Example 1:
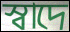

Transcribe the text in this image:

স্বাদে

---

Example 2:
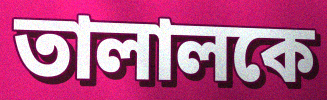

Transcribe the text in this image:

তালালকে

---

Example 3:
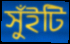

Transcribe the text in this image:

সুঁইটি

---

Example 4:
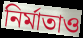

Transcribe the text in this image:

নির্মাতাও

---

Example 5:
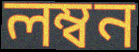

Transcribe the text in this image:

লম্বন